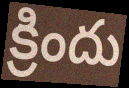
క్రిందు